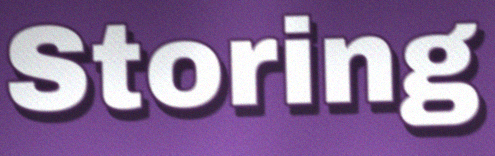
Storing